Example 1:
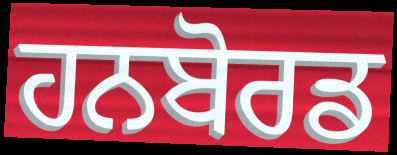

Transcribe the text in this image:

ਹਨਬੋਰਡ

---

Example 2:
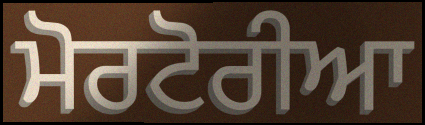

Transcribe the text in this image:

ਮੋਰਟੋਰੀਆ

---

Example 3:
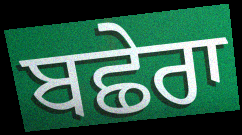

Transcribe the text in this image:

ਬਛੇਰਾ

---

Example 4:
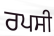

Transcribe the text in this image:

ਰਪਸੀ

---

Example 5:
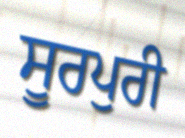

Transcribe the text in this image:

ਸੂਰਪੁਰੀ